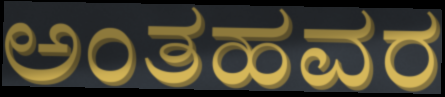
ಅಂತಹವರ